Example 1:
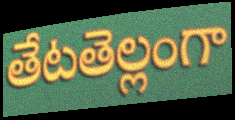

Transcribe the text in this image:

తేటతెల్లంగా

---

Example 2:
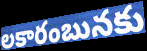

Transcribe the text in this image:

లకారంబునకు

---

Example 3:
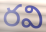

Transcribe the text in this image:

రవి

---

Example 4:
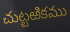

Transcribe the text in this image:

చుట్టఱికము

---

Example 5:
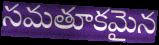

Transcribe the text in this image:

సమతూకమైన